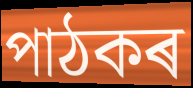
পাঠকৰ